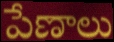
పేణాలు